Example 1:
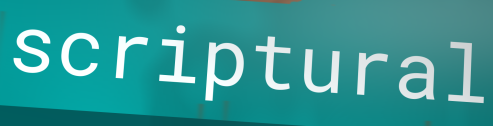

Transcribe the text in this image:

scriptural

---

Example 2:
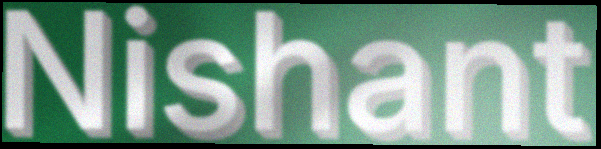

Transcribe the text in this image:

Nishant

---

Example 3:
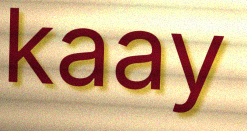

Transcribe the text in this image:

kaay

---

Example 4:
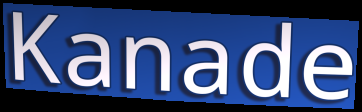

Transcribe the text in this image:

Kanade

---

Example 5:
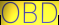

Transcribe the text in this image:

OBD